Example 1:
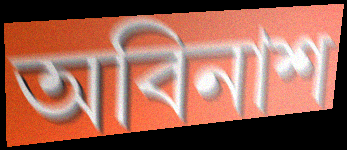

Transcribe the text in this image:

অবিনাশ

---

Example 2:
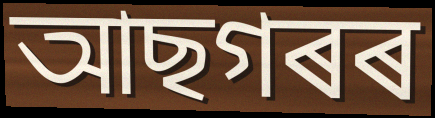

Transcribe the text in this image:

আছগৰৰ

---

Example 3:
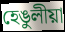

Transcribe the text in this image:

হেঙুলীয়া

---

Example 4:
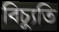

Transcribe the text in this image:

বিচ্যুতি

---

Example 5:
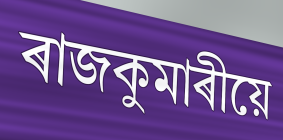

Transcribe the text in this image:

ৰাজকুমাৰীয়ে